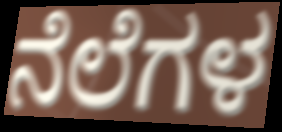
ನೆಲೆಗಳ